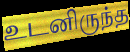
உடனிருந்த